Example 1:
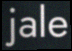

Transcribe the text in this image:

jale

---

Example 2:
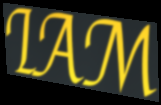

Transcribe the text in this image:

IAM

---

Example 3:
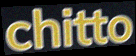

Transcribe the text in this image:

chitto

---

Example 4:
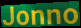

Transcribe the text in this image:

Jonno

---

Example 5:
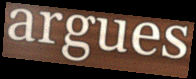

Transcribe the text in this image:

argues